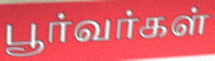
பூர்வர்கள்